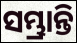
ସମ୍ଭ୍ରାନ୍ତି